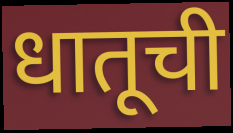
धातूची